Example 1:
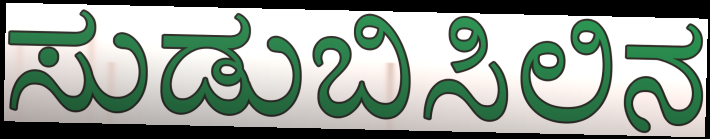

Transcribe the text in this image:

ಸುಡುಬಿಸಿಲಿನ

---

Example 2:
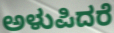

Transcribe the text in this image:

ಅಳುಪಿದರೆ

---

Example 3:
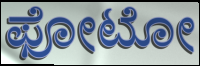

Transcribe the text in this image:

ಫೋಟೋ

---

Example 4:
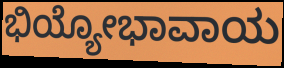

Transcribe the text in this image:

ಭಿಯ್ಯೋಭಾವಾಯ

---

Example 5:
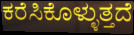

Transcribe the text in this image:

ಕರೆಸಿಕೊಳ್ಳುತ್ತದೆ